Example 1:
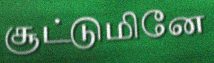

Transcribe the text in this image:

சூட்டுமினே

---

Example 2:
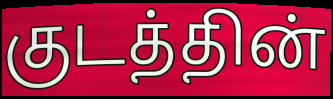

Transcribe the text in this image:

குடத்தின்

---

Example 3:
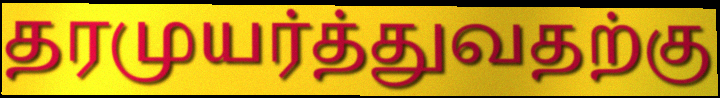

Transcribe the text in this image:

தரமுயர்த்துவதற்கு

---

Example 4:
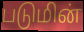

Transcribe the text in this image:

படுமின்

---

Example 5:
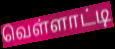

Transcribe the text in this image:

வெள்ளாட்டி